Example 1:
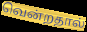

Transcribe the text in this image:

வென்றதால்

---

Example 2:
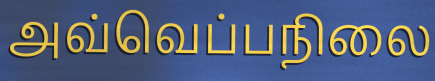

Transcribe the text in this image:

அவ்வெப்பநிலை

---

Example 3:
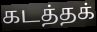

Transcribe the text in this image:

கடத்தக்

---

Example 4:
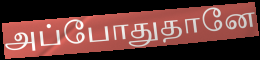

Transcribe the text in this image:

அப்போதுதானே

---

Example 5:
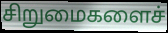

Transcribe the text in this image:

சிறுமைகளைச்